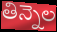
తిన్నెల